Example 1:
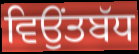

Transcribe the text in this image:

ਵਿਉਂਤਬੱਧ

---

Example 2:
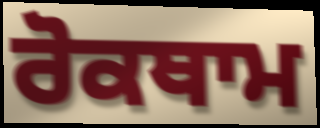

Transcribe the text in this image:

ਰੋਕਥਾਮ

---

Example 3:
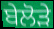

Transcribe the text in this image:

ਬੇਲੋੜੇ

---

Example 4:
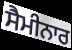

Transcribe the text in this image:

ਸੈਮੀਨਾਰ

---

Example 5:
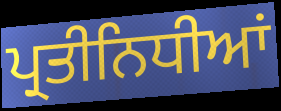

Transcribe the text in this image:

ਪ੍ਰਤੀਨਿਧੀਆਂ